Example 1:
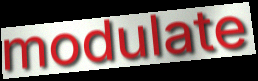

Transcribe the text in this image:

modulate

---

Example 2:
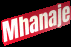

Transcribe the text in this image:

Mhanaje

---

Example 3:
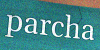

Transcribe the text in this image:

parcha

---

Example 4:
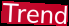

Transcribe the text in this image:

Trend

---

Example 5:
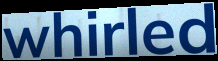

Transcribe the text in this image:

whirled